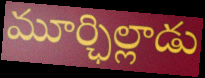
మూర్ఛిల్లాడు